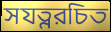
সযত্নরচিত